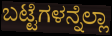
ಬಟ್ಟೆಗಳನ್ನೆಲ್ಲಾ